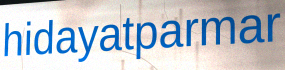
hidayatparmar